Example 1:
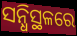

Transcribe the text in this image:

ସନ୍ଧିସ୍ଥଳରେ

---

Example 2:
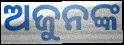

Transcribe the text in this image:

ଅଜୁନଙ୍କ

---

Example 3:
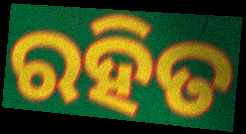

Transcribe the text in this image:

ରହିତ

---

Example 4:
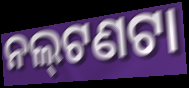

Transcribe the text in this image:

ନଲ୍‍ଟଣଟା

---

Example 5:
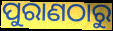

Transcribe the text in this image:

ପୁରାଣଠାରୁ